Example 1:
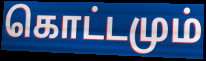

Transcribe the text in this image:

கொட்டமும்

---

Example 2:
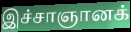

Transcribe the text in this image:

இச்சாஞானக்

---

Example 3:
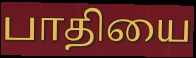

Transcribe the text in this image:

பாதியை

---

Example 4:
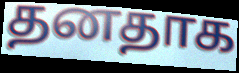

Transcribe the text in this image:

தனதாக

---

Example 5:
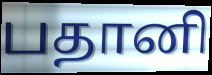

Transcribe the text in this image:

பதானி